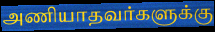
அணியாதவர்களுக்கு